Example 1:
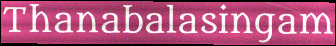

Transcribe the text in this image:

Thanabalasingam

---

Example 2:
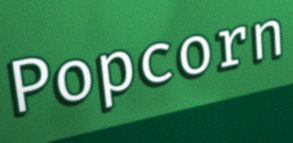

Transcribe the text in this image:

Popcorn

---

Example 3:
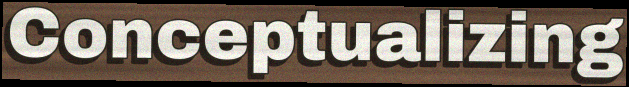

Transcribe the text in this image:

Conceptualizing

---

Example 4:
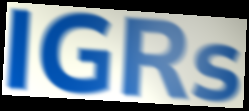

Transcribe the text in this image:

IGRs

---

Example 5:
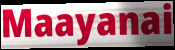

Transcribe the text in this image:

Maayanai